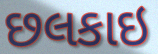
છલકાઇ